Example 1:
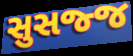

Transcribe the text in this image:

સુસજ્જ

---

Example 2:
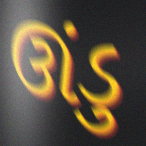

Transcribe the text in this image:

ઊંડુ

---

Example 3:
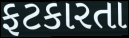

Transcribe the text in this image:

ફટકારતા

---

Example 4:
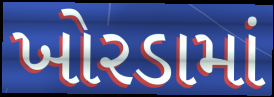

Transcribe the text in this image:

ખોરડામાં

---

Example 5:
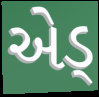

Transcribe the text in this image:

એડ્